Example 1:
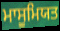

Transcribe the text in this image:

ਮਾਸੂਮਿਯਤ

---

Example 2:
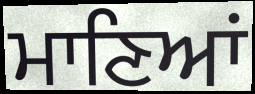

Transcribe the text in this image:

ਮਾਣਿਆਂ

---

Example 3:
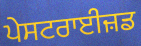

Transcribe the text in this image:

ਪੇਸਟਰਾਈਜ਼ਡ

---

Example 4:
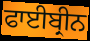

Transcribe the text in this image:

ਫਾਈਬ੍ਰੀਨ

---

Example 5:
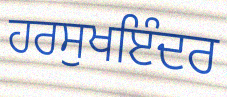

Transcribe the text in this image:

ਹਰਸੁਖਇੰਦਰ